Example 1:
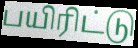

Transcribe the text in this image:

பயிரிட்டு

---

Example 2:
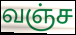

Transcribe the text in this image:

வஞ்ச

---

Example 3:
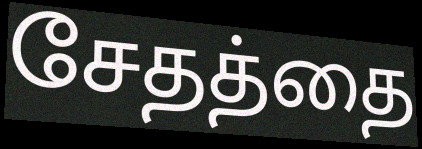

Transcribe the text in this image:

சேதத்தை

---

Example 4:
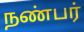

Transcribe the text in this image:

நண்பர்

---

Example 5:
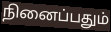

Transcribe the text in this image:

நினைப்பதும்